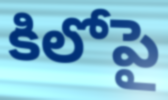
కిలోపై